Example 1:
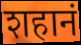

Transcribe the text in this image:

शहानं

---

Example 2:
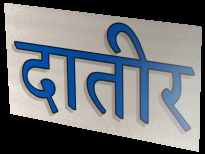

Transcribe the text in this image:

दातीर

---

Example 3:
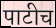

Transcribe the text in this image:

पाटीच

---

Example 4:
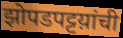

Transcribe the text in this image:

झोपडपट्टय़ांची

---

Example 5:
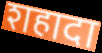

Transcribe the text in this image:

शहादा